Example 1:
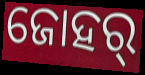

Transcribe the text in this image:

ଜୋହର୍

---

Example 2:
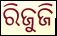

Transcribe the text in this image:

ରିଜୁଜି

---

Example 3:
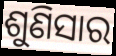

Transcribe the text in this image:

ଶୁଣିସାର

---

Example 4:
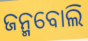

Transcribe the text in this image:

ଜନ୍ମବୋଲି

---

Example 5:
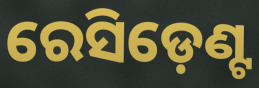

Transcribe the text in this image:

ରେସିଡ଼େଣ୍ଟ